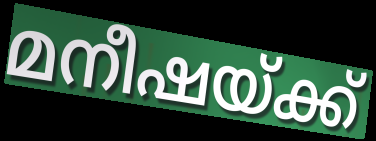
മനീഷയ്ക്ക്